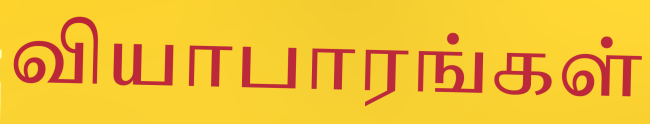
வியாபாரங்கள்